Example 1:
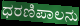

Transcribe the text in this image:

ಧರಣಿಪಾಲನು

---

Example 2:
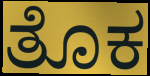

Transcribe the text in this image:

ತೊಕ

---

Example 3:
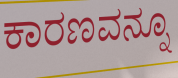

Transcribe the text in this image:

ಕಾರಣವನ್ನೂ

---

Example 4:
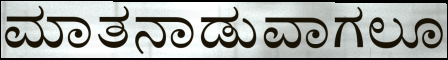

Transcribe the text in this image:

ಮಾತನಾಡುವಾಗಲೂ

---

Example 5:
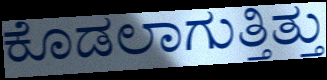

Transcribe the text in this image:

ಕೊಡಲಾಗುತ್ತಿತ್ತು